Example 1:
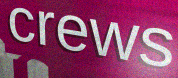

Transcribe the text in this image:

crews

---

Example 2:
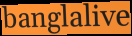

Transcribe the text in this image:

banglalive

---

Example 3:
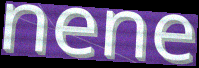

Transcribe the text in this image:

nene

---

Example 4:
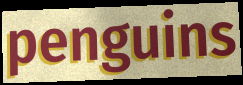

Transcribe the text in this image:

penguins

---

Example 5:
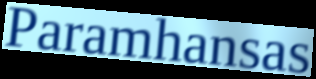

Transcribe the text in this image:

Paramhansas